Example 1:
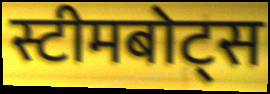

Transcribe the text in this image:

स्टीमबोट्स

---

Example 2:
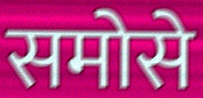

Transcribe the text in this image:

समोसे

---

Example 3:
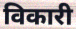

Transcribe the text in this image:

विकारी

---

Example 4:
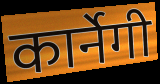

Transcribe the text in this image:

कार्नेगी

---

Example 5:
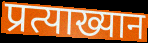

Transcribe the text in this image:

प्रत्याख्यान